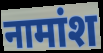
नामांश